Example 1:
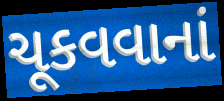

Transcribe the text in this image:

ચૂકવવાનાં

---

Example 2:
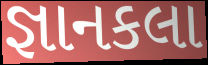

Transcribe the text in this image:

જ્ઞાનકલા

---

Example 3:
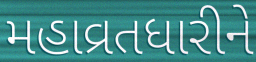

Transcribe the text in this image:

મહાવ્રતધારીને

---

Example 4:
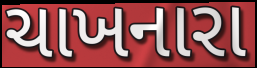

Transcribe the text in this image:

ચાખનારા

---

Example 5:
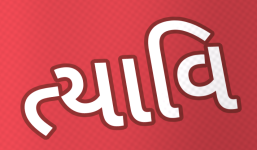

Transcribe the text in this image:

ત્યાવિ